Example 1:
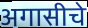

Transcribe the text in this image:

अगासीचे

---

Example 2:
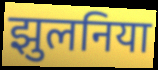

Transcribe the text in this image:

झुलनिया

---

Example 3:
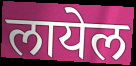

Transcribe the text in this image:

लायेल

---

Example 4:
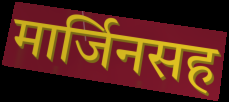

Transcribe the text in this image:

मार्जिनसह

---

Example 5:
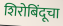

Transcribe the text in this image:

शिरोबिंदूचा